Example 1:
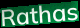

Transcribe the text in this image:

Rathas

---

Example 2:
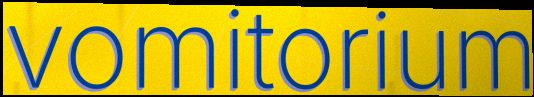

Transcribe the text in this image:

vomitorium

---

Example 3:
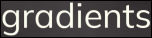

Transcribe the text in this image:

gradients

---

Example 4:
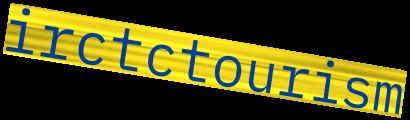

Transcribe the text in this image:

irctctourism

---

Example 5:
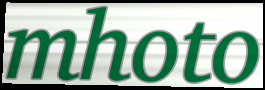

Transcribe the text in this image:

mhoto